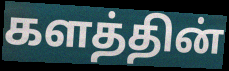
களத்தின்